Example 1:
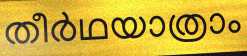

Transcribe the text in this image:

തീർഥയാത്രാം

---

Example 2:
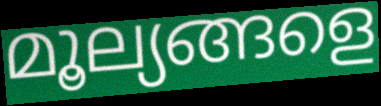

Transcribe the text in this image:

മൂല്യങ്ങളെ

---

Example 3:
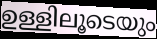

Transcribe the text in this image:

ഉള്ളിലൂടെയും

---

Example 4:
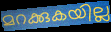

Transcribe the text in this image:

മറക്കുകയില്ല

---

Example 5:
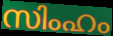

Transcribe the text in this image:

സിംഹം